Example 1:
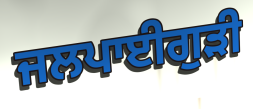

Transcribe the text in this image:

ਜਲਪਾਈਗੁਡ਼ੀ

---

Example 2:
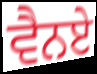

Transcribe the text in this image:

ਵੈਨਏ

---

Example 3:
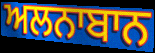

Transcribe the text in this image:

ਅਲਨਾਬਾਨ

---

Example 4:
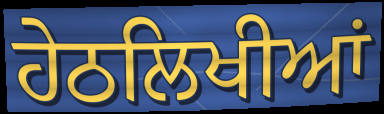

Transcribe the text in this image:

ਹੇਠਲਿਖੀਆਂ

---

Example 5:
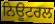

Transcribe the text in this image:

ਨਿਊਟਰਲ